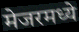
मेजरमध्ये